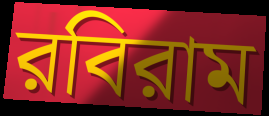
রবিরাম